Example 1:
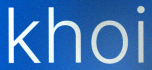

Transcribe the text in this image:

khoi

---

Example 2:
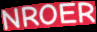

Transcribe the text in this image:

NROER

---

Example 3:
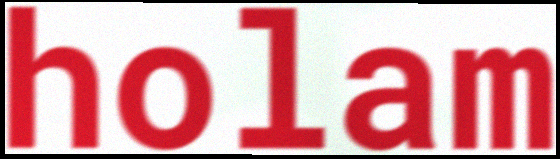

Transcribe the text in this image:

holam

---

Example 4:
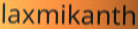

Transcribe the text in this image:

laxmikanth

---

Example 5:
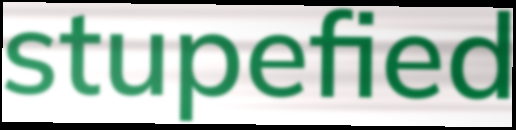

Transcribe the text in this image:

stupefied